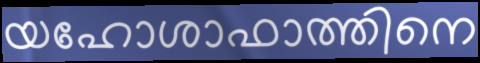
യഹോശാഫാത്തിനെ